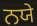
ਨਯੇ